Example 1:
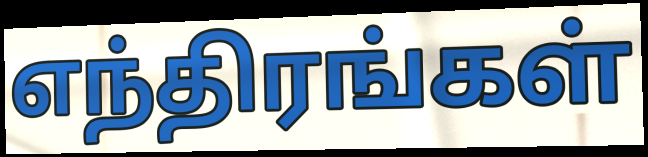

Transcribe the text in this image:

எந்திரங்கள்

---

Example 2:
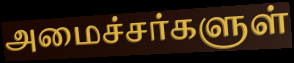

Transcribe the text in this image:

அமைச்சர்களுள்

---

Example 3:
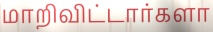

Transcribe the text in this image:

மாறிவிட்டார்களா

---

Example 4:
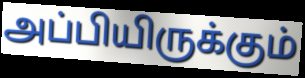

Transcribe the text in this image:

அப்பியிருக்கும்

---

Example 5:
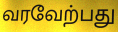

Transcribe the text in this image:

வரவேற்பது